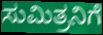
ಸುಮಿತ್ರನಿಗೆ